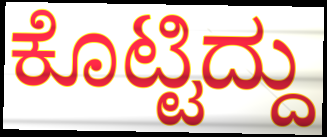
ಕೊಟ್ಟಿದ್ದು